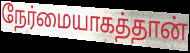
நேர்மையாகத்தான்